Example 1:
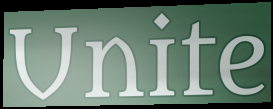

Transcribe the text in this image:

Unite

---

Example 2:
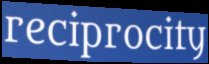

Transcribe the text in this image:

reciprocity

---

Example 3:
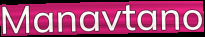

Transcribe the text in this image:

Manavtano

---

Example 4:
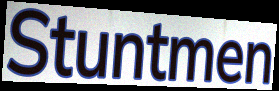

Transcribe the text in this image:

Stuntmen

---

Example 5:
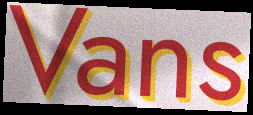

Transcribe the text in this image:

Vans